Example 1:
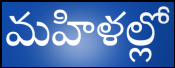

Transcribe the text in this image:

మహిళల్లో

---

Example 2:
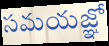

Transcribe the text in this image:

సమయజ్ఞో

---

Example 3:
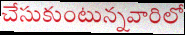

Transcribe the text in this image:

చేసుకుంటున్నవారిలో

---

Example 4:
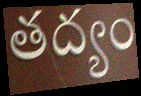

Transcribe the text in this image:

తద్యం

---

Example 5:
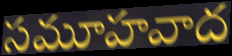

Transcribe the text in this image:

సమూహవాద